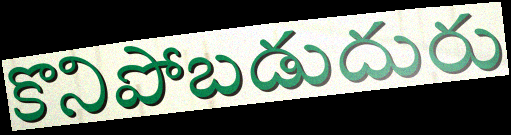
కొనిపోబడుదురు